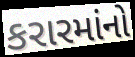
કરારમાંનો